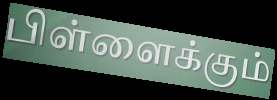
பிள்ளைக்கும்